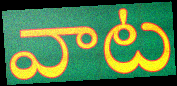
వాట